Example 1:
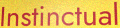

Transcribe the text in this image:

Instinctual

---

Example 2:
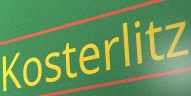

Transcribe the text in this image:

Kosterlitz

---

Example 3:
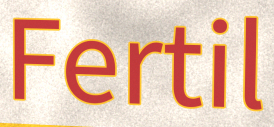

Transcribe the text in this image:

Fertil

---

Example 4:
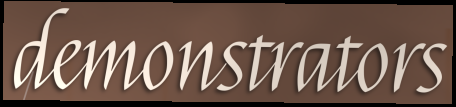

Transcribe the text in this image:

demonstrators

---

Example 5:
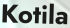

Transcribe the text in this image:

Kotila